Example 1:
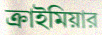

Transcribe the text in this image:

ক্রাইমিয়ার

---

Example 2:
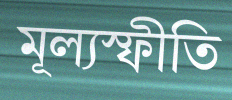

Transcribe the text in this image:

মূল্যস্ফীতি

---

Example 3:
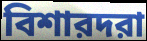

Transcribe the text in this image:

বিশারদরা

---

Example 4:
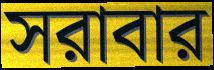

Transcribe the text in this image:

সরাবার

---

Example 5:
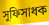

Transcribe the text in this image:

সুফিসাধক